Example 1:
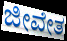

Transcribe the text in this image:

ಜೀವೇತ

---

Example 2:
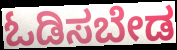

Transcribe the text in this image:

ಓಡಿಸಬೇಡ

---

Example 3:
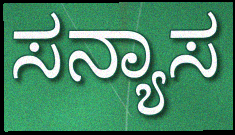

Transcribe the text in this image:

ಸನ್ಯಾಸ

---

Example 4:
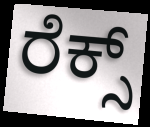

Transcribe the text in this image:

ರೆಕ್ಸ್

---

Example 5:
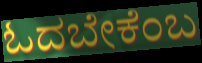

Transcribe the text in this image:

ಓದಬೇಕೆಂಬ